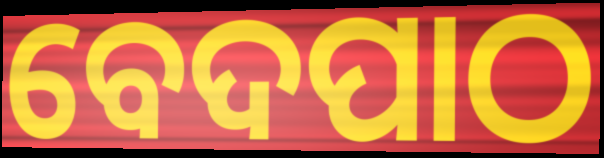
ବେଦପାଠ